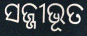
ସଜ୍ଜୀଭୂତ